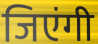
जिएंगी